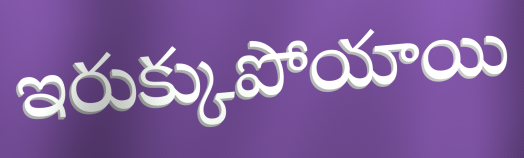
ఇరుక్కుపోయాయి